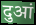
दुआं